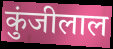
कुंजीलाल